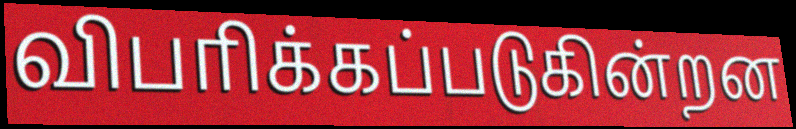
விபரிக்கப்படுகின்றன